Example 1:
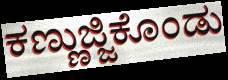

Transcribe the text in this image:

ಕಣ್ಣುಜ್ಜಿಕೊಂಡು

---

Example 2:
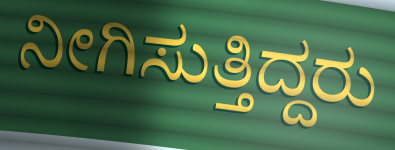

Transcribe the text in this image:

ನೀಗಿಸುತ್ತಿದ್ದರು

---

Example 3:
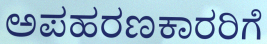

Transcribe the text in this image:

ಅಪಹರಣಕಾರರಿಗೆ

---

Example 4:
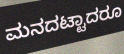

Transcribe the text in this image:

ಮನದಟ್ಟಾದರೂ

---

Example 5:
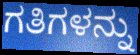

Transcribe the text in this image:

ಗತಿಗಳನ್ನು